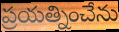
ప్రయత్నించేను